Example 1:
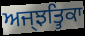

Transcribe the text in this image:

ਅਜ੍ਝਤ੍ਤਿਕਾ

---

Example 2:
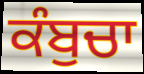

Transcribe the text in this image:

ਕੰਬੁਚਾ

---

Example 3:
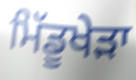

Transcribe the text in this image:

ਮਿੱਡੂਖੇੜਾ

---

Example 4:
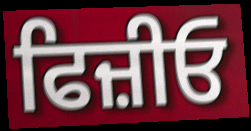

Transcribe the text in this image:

ਫਿਜ਼ੀਓ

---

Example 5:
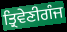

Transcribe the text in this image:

ਤ੍ਰਿਵੇਣੀਗੰਜ